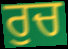
ਰੁਚ